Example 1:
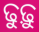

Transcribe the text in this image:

ଢୁଢ଼ୁ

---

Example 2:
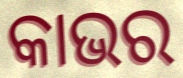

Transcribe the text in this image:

କାଭର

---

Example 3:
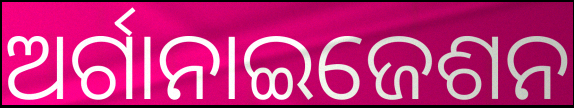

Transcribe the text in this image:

ଅର୍ଗାନାଇଜେଶନ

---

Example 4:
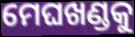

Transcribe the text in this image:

ମେଘଖଣ୍ଡକୁ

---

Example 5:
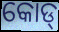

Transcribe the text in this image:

କୋଡ୍